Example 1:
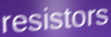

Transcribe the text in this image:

resistors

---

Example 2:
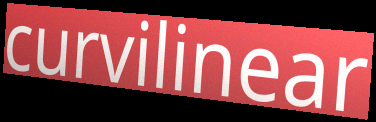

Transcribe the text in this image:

curvilinear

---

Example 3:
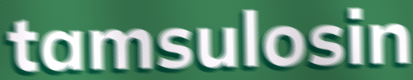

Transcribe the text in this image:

tamsulosin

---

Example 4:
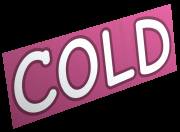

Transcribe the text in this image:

COLD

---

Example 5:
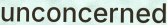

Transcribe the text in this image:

unconcerned